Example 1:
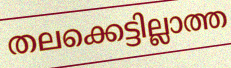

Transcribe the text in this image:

തലക്കെട്ടില്ലാത്ത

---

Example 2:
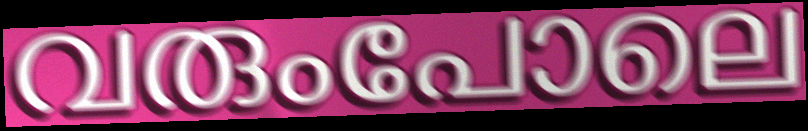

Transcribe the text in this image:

വരുംപോലെ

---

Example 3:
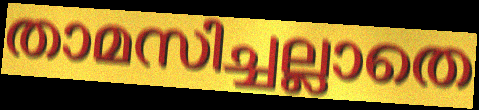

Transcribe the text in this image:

താമസിച്ചല്ലാതെ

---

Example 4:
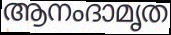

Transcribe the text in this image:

ആനംദാമൃത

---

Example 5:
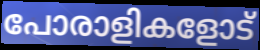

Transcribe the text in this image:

പോരാളികളോട്